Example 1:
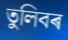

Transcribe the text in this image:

তুলিবৰ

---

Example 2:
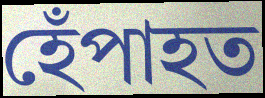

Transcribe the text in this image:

হেঁপাহত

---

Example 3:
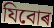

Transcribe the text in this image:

যিবোৰ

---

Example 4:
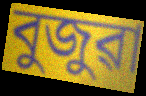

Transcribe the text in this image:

বুজুৱা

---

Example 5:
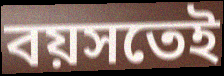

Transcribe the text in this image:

বয়সতেই